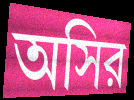
অসির